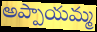
అప్పాయమ్మ